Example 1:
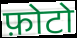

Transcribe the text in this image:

फ़ोटो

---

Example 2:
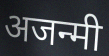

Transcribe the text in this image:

अजन्मी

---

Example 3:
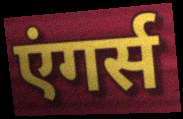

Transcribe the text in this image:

एंगर्स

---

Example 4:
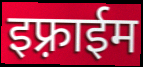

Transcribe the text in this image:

इफ़्राईम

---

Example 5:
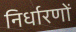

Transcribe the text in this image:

निर्धारणों